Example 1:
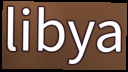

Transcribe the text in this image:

libya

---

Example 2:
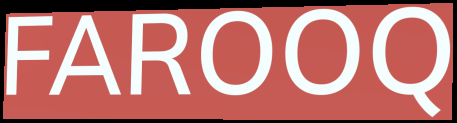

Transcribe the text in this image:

FAROOQ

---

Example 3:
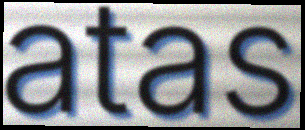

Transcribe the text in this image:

atas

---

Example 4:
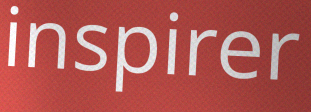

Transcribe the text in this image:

inspirer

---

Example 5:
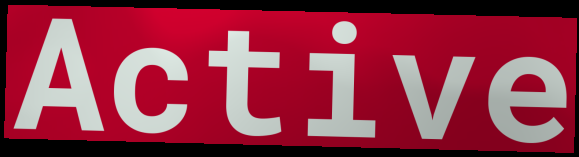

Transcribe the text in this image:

Active